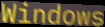
Windows